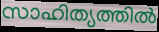
സാഹിത്യത്തിൽ